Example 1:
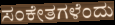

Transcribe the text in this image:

ಸಂಕೇತಗಳೆಂದು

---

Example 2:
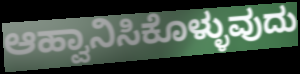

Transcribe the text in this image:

ಆಹ್ವಾನಿಸಿಕೊಳ್ಳುವುದು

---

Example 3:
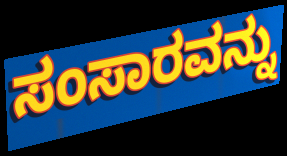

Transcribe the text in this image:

ಸಂಸಾರವನ್ನು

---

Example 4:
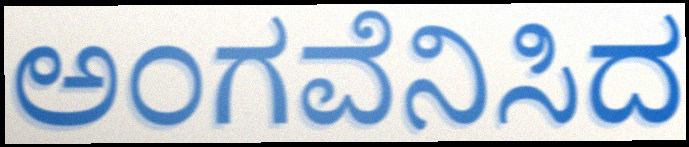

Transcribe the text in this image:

ಅಂಗವೆನಿಸಿದ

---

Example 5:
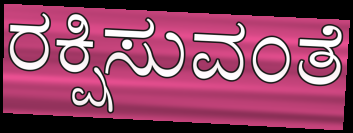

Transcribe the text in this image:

ರಕ್ಷಿಸುವಂತೆ